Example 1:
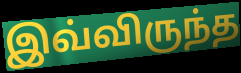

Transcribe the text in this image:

இவ்விருந்த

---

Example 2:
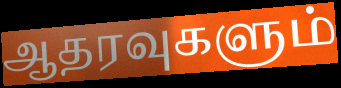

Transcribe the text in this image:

ஆதரவுகளும்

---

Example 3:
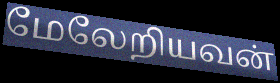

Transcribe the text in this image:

மேலேறியவன்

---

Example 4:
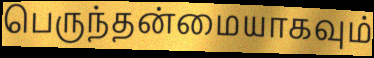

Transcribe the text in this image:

பெருந்தன்மையாகவும்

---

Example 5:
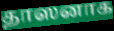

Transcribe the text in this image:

தாஸனாக